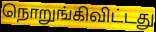
நொறுங்கிவிட்டது